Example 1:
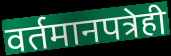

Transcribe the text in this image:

वर्तमानपत्रेही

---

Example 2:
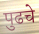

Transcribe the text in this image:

पुढचे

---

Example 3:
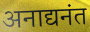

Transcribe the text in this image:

अनाद्यनंत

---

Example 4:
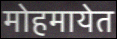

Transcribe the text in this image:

मोहमायेत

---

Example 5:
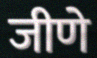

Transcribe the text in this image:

जीणे